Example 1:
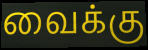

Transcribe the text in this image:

வைக்கு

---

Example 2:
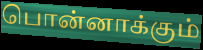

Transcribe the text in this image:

பொன்னாக்கும்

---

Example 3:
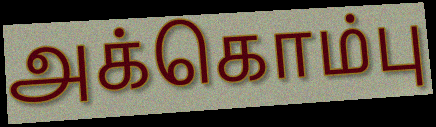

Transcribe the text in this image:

அக்கொம்பு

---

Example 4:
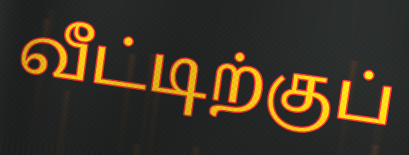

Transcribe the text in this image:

வீட்டிற்குப்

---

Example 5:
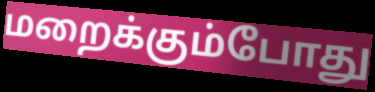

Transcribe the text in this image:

மறைக்கும்போது